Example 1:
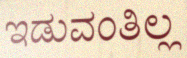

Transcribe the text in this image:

ಇಡುವಂತಿಲ್ಲ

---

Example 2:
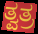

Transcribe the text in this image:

ತ್ವತ್ರ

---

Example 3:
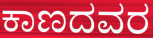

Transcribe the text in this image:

ಕಾಣದವರ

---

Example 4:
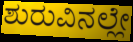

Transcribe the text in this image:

ಶುರುವಿನಲ್ಲೇ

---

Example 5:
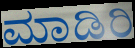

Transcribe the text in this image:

ಮಾಡಿರಿ